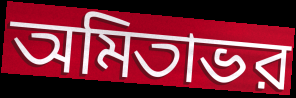
অমিতাভর